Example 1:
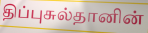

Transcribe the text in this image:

திப்புசுல்தானின்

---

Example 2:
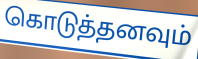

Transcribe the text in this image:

கொடுத்தனவும்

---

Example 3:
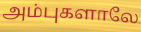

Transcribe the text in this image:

அம்புகளாலே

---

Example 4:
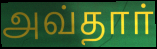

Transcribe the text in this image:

அவ்தார்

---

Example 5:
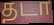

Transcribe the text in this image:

தடா